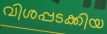
വിശപ്പടക്കിയ